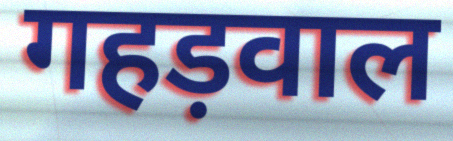
गहड़वाल